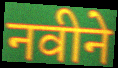
नवीने